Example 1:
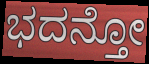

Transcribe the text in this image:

ಭದನ್ತೋ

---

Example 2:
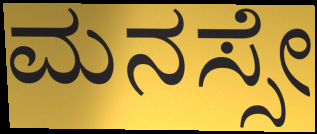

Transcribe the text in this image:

ಮನಸ್ಸೇ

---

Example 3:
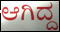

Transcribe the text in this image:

ಆಗಿದ್ದ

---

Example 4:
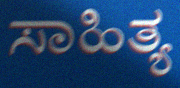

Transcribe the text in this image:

ಸಾಹಿತ್ಯ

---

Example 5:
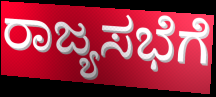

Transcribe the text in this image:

ರಾಜ್ಯಸಭೆಗೆ